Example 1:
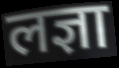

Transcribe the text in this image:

लज्ञा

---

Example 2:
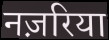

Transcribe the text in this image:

नज़रिया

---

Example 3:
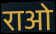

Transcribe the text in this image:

राओ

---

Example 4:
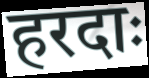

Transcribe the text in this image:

हरदाः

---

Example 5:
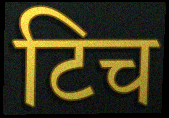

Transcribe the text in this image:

टिच